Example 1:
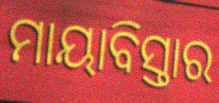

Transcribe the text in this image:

ମାୟାବିସ୍ତାର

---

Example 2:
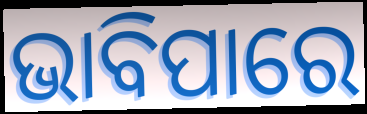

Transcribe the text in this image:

ଭାବିପାରେ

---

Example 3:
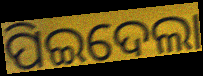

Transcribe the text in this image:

ପିଇଦେଲା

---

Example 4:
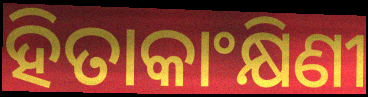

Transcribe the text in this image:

ହିତାକାଂକ୍ଷିଣୀ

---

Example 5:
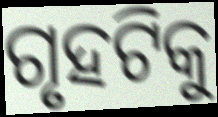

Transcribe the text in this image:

ଗୃହଟିକୁ